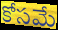
కోసమే